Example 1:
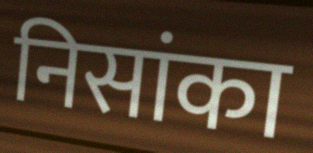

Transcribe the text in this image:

निसांका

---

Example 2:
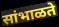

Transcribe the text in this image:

सांभाळते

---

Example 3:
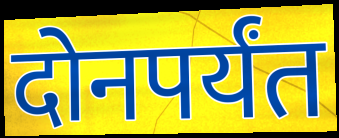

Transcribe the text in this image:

दोनपर्यंत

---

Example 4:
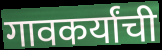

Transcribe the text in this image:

गावकर्यांची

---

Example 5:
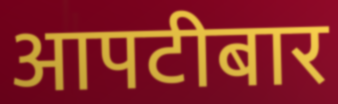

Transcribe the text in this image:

आपटीबार